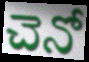
చెనో